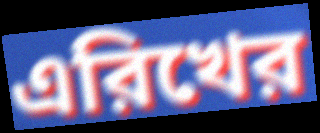
এরিখের